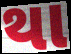
થા